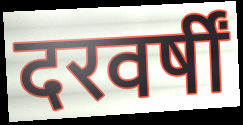
दरवर्षीं